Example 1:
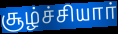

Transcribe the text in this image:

சூழ்ச்சியார்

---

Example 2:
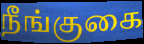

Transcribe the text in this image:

நீங்குகை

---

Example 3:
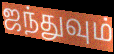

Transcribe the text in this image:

ஜந்துவும்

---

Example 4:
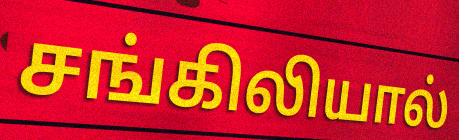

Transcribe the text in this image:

சங்கிலியால்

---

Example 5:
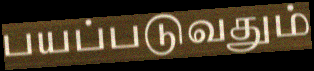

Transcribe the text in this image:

பயப்படுவதும்